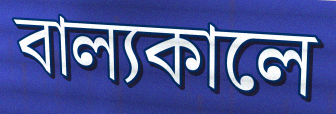
বাল্যকালে